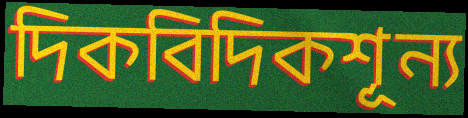
দিকবিদিকশূন্য